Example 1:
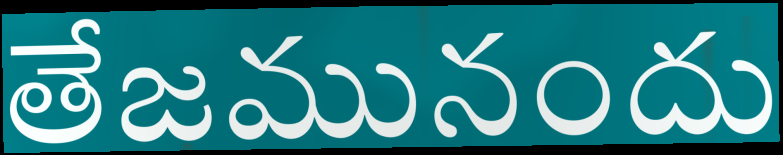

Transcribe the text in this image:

తేజమునందు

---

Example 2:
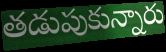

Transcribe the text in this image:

తడుపుకున్నారు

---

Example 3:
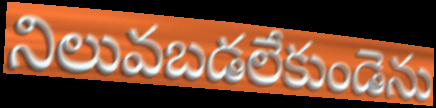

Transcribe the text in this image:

నిలువబడలేకుండెను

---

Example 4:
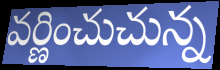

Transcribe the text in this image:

వర్ణించుచున్న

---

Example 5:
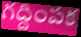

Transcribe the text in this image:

గద్దింపక